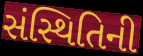
સંસ્થિતિની